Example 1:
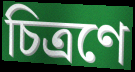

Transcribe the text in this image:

চিত্ৰণে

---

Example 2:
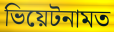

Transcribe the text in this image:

ভিয়েটনামত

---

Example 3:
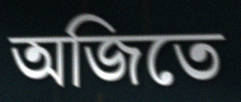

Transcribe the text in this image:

অজিতে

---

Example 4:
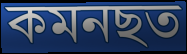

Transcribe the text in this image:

কমনছত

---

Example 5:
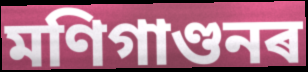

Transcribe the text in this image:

মণিগাণ্ডনৰ